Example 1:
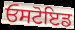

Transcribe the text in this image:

ਓਸਟੋਇਡ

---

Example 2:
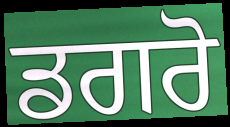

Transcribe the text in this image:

ਡਗਰੋ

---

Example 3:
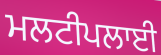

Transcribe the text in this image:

ਮਲਟੀਪਲਾਈ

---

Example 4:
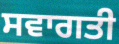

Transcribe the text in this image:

ਸਵਾਗਤੀ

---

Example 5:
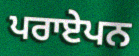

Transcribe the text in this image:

ਪਰਾਏਪਨ